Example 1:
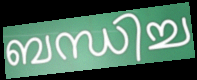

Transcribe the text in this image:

ബന്ധിച്ച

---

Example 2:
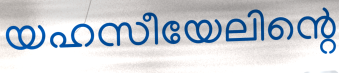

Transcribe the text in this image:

യഹസീയേലിന്റെ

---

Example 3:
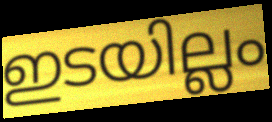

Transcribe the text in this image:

ഇടയില്ലം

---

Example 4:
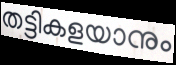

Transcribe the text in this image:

തട്ടികളയാനും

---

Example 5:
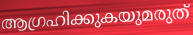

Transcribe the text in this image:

ആഗ്രഹിക്കുകയുമരുത്